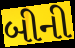
બીની